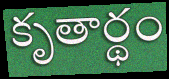
కృతార్థం